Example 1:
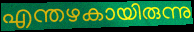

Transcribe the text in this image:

എന്തഴകായിരുന്നു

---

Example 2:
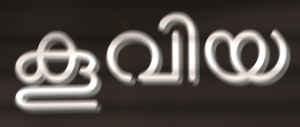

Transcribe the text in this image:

കൂവിയ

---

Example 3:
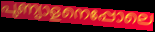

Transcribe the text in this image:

പുണ്യാളനെപ്പോലെ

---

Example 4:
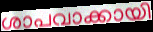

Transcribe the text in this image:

ശാപവാക്കായി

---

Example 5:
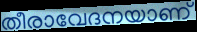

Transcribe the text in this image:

തീരാവേദനയാണ്